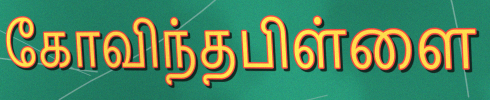
கோவிந்தபிள்ளை